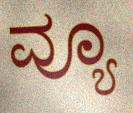
ವ್ಯೂ